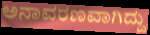
ಅನಾವರಣವಾಗಿದ್ದು